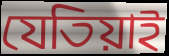
যেতিয়াই